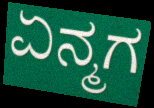
ಏನ್ಮಗ